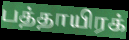
பத்தாயிரக்